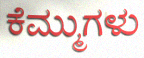
ಕೆಮ್ಮುಗಳು